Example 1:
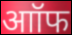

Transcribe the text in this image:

आॉफ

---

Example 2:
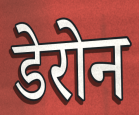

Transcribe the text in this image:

डेरोन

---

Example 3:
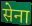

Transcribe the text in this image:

सेना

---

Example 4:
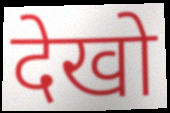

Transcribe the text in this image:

देखो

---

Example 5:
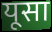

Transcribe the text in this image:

यूसा